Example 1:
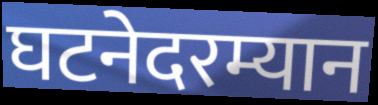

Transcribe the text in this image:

घटनेदरम्यान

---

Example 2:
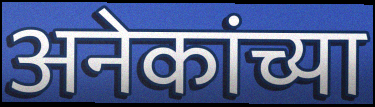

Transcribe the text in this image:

अनेकांच्या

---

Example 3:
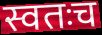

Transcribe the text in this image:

स्वतःच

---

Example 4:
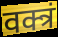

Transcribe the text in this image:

वक्त्रं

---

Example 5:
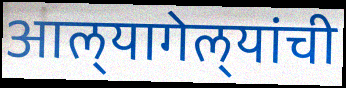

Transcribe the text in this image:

आल्यागेल्यांची